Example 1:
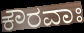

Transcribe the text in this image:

ಕೌರವಾಃ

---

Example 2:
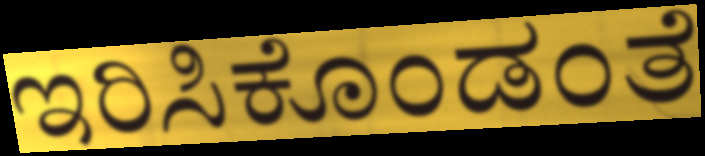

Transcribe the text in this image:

ಇರಿಸಿಕೊಂಡಂತೆ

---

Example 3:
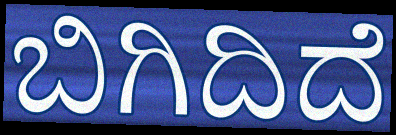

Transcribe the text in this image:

ಬಿಗಿದಿದೆ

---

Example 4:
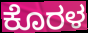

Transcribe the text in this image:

ಕೊರಳ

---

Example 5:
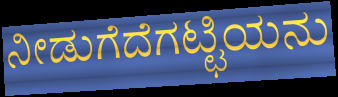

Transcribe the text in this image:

ನೀಡುಗೆದೆಗಟ್ಟಿಯನು